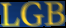
LGB